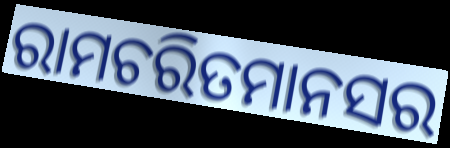
ରାମଚରିତମାନସର